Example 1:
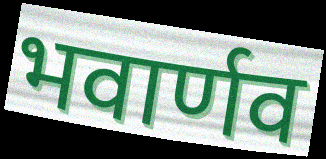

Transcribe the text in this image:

भवार्णव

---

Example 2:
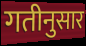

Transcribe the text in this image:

गतीनुसार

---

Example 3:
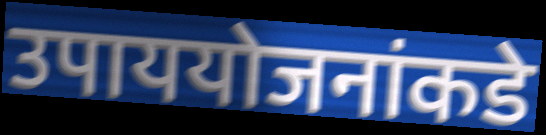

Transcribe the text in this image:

उपाययोजनांकडे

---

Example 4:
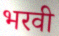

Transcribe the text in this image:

भरवी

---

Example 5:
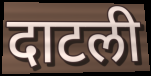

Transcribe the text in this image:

दाटली